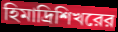
হিমাদ্রিশিখরের